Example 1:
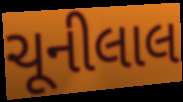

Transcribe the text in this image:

ચૂનીલાલ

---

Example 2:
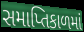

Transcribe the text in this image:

સમાપ્તિકાળમાં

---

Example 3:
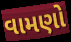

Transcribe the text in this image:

વામણો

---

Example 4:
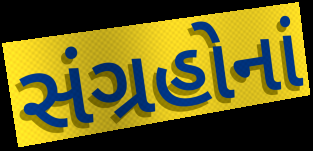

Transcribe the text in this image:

સંગ્રહોનાં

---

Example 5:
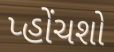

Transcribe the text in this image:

પ્હોંચશો